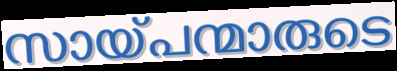
സായ്പന്മാരുടെ